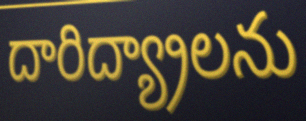
దారిద్య్రాలను